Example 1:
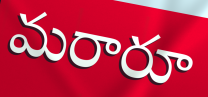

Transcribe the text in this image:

మరారూ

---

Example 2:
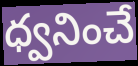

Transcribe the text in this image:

ధ్వనించే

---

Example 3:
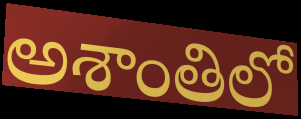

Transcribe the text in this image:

అశాంతిలో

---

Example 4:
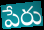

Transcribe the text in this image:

పేరు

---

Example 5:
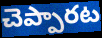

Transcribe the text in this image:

చెప్పారట